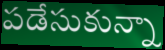
పడేసుకున్నా